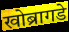
खोब्रागडे